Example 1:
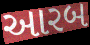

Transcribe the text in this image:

આરબ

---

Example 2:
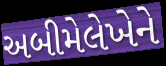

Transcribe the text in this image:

અબીમેલેખેને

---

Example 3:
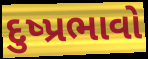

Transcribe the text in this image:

દુષ્પ્રભાવો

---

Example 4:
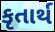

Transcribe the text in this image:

કૃતાર્થ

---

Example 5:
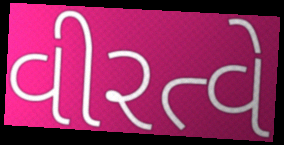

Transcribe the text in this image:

વીરત્વે